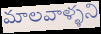
మాలవాళ్ళని